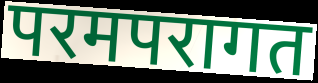
परमपरागत